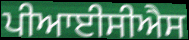
ਪੀਆਈਸੀਐਸ